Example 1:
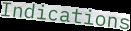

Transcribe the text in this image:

Indications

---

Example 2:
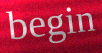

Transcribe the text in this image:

begin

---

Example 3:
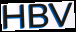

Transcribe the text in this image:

HBV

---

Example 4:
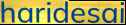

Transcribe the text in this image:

haridesai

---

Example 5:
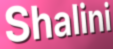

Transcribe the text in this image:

Shalini